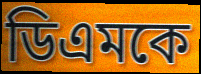
ডিএমকে